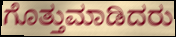
ಗೊತ್ತುಮಾಡಿದರು